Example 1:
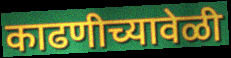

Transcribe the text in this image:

काढणीच्यावेळी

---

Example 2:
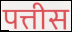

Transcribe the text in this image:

पत्तीस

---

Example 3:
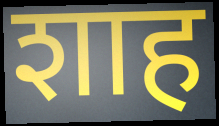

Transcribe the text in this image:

शाह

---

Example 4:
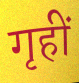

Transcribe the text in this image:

गृहीं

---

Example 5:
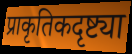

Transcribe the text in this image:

प्राकृतिकदृष्ट्या